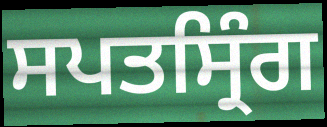
ਸਪਤਸ੍ਰਿੰਗ